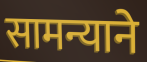
सामन्याने